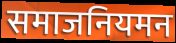
समाजनियमन